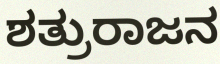
ಶತ್ರುರಾಜನ